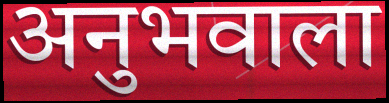
अनुभवाला